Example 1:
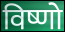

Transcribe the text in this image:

विष्णो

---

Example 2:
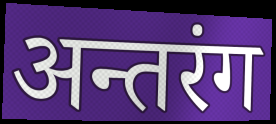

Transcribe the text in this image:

अन्तरंग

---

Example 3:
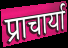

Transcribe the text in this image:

प्राचार्या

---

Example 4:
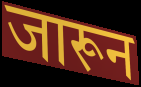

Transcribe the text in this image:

जारून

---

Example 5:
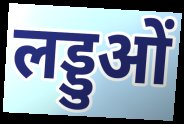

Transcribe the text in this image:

लड्डुओं